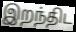
இறந்திட